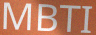
MBTI